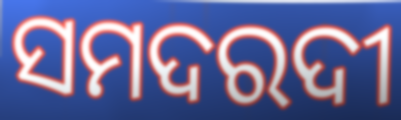
ସମଦରଦୀ